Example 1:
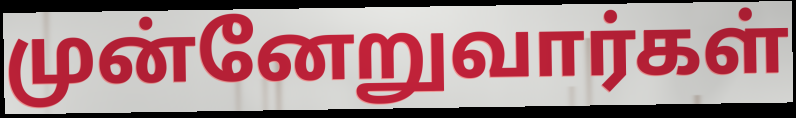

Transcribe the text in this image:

முன்னேறுவார்கள்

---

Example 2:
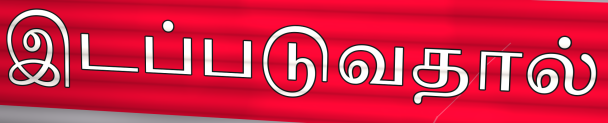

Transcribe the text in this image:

இடப்படுவதால்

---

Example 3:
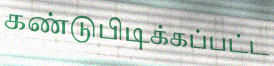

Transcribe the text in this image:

கண்டுபிடிக்கப்பட்ட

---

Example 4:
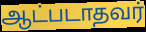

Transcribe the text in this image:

ஆட்படாதவர்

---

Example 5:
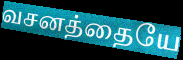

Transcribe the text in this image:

வசனத்தையே